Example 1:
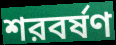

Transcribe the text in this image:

শরবর্ষণ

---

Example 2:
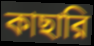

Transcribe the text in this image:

কাছারি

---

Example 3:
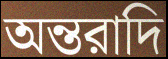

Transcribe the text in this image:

অন্তরাদি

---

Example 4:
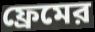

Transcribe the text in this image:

ফ্রেমের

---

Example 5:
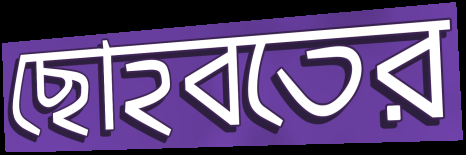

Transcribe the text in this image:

ছোহবতের